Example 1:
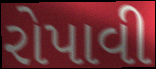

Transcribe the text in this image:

રોપાવી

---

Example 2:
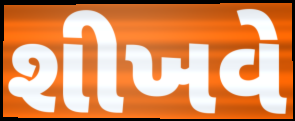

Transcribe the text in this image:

શીખવે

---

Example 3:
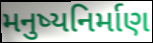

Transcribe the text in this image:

મનુષ્યનિર્માણ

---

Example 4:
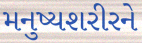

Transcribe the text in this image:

મનુષ્યશરીરને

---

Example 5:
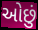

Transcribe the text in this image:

ઓછું